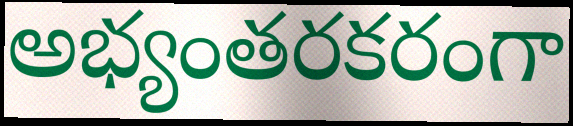
అభ్యంతరకరంగా